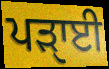
ਪੜਾੑਈ